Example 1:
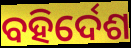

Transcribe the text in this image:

ବହିର୍ଦେଶ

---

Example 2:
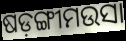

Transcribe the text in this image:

ଷଡ଼ଙ୍ଗୀମଉସା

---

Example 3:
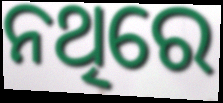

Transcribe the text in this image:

ନଥିରେ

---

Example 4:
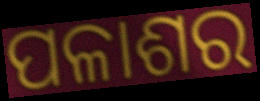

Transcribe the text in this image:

ପଳାଶର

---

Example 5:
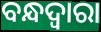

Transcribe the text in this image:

ବନ୍ଧଦ୍ବାରା